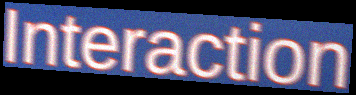
Interaction